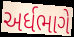
અર્ધભાગે